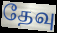
தேவு